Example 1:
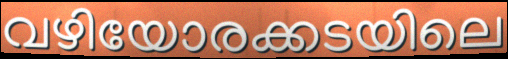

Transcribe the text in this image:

വഴിയോരക്കടയിലെ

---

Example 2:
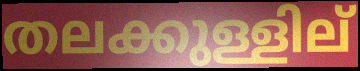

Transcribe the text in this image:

തലക്കുള്ളില്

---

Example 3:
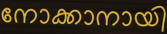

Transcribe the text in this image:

നോക്കാനായി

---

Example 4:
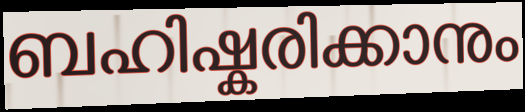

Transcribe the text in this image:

ബഹിഷ്കരിക്കാനും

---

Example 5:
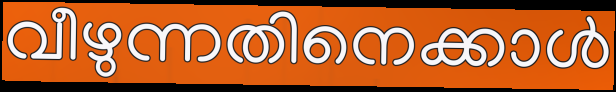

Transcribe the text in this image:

വീഴുന്നതിനെക്കാൾ